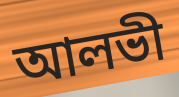
আলভী